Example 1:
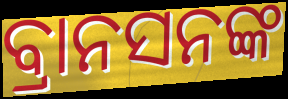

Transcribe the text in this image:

ବ୍ରାନସନଙ୍କ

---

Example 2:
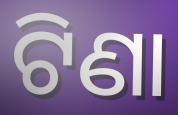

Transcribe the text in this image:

ଟିଣା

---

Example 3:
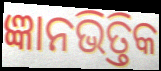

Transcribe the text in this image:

ଜ୍ଞାନଭିତ୍ତିକ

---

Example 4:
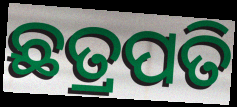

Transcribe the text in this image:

ଛତ୍ରପତି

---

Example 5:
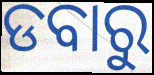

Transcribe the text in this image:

ଡବାରୁ